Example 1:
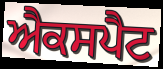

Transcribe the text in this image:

ਐਕਸਪੈਟ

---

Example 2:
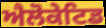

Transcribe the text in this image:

ਐਲੋਕੇਟਿਡ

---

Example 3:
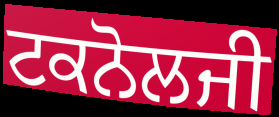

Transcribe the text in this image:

ਟਕਨੋਲਜੀ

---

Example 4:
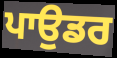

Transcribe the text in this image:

ਪਾਉਡਰ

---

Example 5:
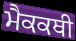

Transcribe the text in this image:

ਮੈਕਕਥੀ